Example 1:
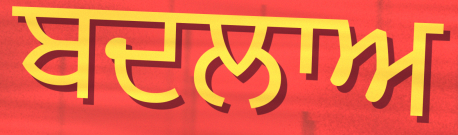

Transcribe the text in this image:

ਬਦਲਾਅ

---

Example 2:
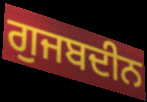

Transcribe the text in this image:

ਗੁਜਬਦੀਨ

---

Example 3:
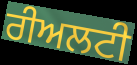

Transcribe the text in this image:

ਰੀਅਲਟੀ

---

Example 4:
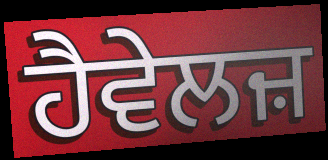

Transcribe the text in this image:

ਹੈਵੇਲਜ਼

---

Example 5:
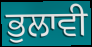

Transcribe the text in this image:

ਭੁਲਾਵੀ